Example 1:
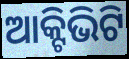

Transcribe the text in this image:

ଆକ୍ଟିଭିଟି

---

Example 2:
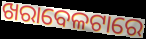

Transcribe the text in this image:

ଖରାବେଳଟାରେ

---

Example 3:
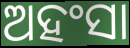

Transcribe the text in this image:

ଅହଂସା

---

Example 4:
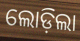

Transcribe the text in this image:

ଲୋଡ଼ିଲା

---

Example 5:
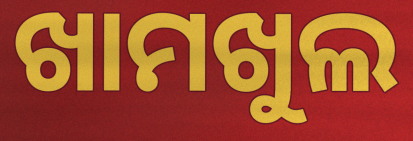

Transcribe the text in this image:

ଖାମଖୁଲ